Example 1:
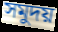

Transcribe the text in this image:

সমুদয়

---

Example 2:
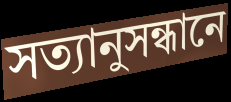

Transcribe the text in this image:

সত্যানুসন্ধানে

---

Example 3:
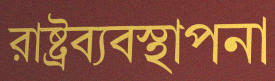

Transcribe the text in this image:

রাষ্ট্রব্যবস্থাপনা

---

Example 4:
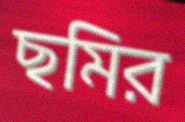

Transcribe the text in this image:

ছমির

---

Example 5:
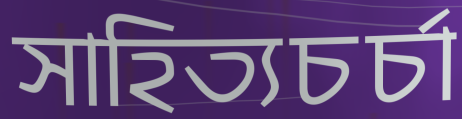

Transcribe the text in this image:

সাহিত্যচর্চা